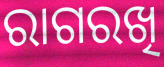
ରାଗରଖି